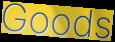
Goods